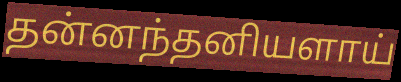
தன்னந்தனியளாய்